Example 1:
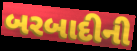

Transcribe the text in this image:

બરબાદીની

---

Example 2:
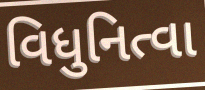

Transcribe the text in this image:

વિધુનિત્વા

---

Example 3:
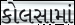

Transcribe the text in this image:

કોલસામાં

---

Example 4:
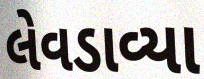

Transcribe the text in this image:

લેવડાવ્યા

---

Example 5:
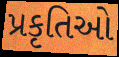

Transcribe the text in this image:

પ્રકૃતિઓ